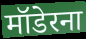
मॉडेरना